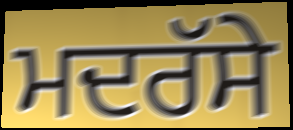
ਮਦਰੱਸੇ